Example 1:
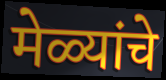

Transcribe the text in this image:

मेळ्यांचे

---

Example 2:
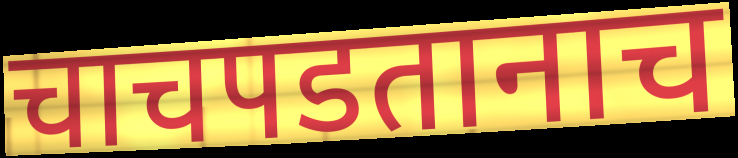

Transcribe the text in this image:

चाचपडतानाच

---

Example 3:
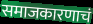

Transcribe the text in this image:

समाजकारणाचं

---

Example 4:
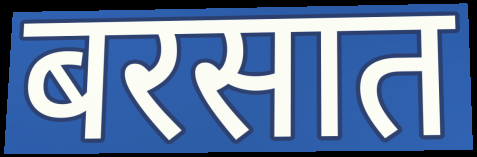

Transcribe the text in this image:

बरसात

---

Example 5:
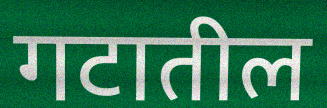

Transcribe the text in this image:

गटातील